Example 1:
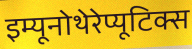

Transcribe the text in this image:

इम्यूनोथेरेप्यूटिक्स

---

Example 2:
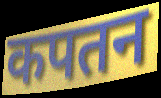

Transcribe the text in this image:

कपतन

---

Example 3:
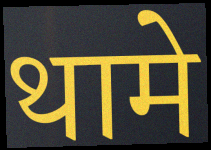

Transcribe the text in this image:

थामे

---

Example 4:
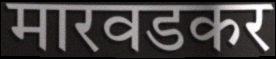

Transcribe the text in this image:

मारवडकर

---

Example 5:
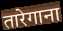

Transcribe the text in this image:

तारेगाना